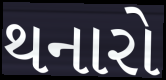
થનારો